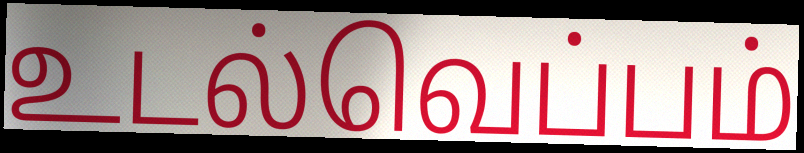
உடல்வெப்பம்